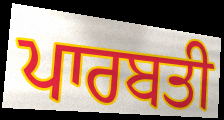
ਪਾਰਬਤੀ